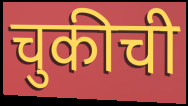
चुकीची